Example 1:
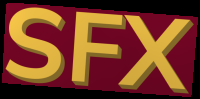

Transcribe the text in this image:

SFX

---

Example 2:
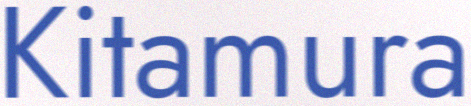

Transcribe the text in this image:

Kitamura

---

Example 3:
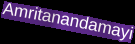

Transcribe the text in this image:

Amritanandamayi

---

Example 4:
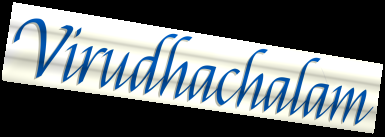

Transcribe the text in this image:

Virudhachalam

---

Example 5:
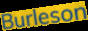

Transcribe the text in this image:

Burleson